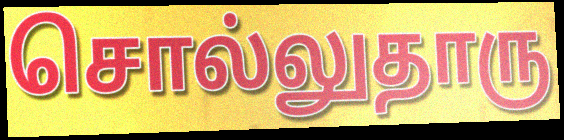
சொல்லுதாரு